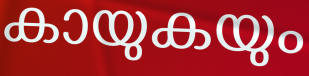
കായുകയും